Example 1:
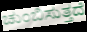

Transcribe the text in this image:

ಚುಂಬಿಸುತ್ತದೆ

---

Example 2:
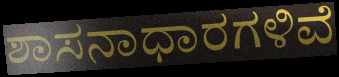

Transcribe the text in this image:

ಶಾಸನಾಧಾರಗಳಿವೆ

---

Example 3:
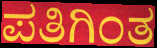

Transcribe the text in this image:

ಪತಿಗಿಂತ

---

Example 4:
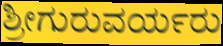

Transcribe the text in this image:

ಶ್ರೀಗುರುವರ್ಯರು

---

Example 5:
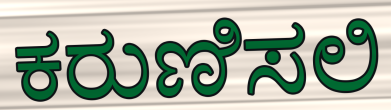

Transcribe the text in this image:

ಕರುಣಿಸಲಿ